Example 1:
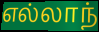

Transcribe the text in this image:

எல்லாந்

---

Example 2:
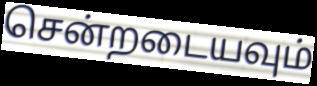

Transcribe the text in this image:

சென்றடையவும்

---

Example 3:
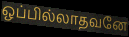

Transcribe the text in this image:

ஒப்பில்லாதவனே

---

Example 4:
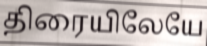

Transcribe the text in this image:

திரையிலேயே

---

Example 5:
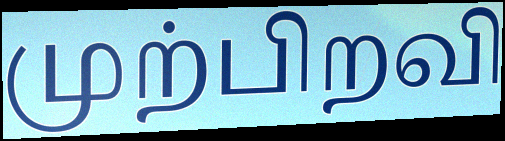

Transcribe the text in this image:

முற்பிறவி